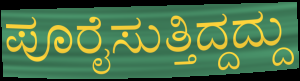
ಪೂರೈಸುತ್ತಿದ್ದದ್ದು